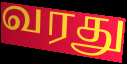
வரது